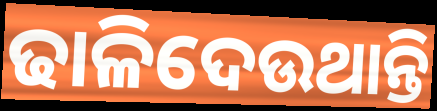
ଢାଳିଦେଉଥାନ୍ତି